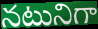
నటునిగా